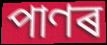
পাণৰ